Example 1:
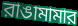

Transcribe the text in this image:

রাঙামামার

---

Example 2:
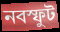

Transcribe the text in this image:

নবস্ফুট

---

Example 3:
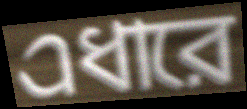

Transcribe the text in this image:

এধারে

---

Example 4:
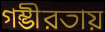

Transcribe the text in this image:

গম্ভীরতায়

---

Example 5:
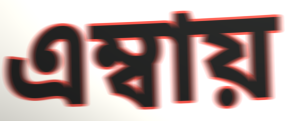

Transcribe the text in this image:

এম্বায়